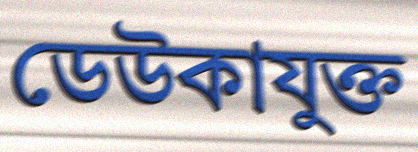
ডেউকাযুক্ত